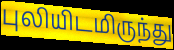
புலியிடமிருந்து